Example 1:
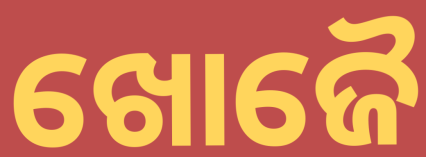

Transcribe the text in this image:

ଖୋଜୈ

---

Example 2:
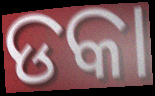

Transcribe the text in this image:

ଡକା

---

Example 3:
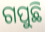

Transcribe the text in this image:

ଗପୁଛି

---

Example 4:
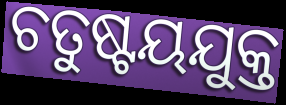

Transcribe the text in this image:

ଚତୁଷ୍ଟୟଯୁକ୍ତ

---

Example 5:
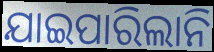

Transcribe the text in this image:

ଯାଇପାରିଲାନି